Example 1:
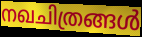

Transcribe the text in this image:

നഖചിത്രങ്ങൾ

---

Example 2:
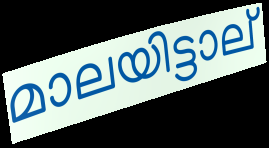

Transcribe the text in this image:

മാലയിട്ടാല്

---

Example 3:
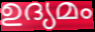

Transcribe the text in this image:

ഉദ്യമം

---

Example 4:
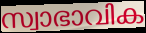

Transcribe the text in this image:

സ്വാഭാവിക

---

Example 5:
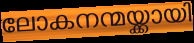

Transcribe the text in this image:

ലോകനന്മയ്ക്കായി